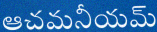
ఆచమనీయమ్